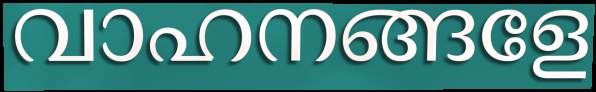
വാഹനങ്ങളേ